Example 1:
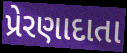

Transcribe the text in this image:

પ્રેરણાદાતા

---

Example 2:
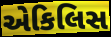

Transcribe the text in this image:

એકિલિસ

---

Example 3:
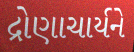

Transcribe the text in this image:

દ્રોણાચાર્યને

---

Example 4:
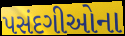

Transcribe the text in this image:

પસંદગીઓના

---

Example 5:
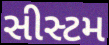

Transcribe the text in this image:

સીસ્ટમ